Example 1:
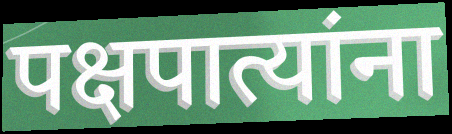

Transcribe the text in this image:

पक्षपात्यांना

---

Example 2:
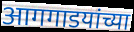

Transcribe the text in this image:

आगगाडयांच्या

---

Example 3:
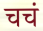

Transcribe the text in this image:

चचं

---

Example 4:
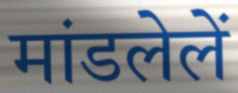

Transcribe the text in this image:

मांडलेलें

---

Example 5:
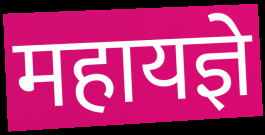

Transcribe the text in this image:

महायज्ञे